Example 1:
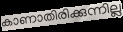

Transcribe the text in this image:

കാണാതിരിക്കുന്നില്ല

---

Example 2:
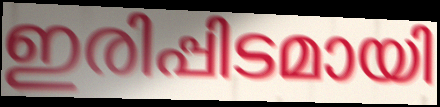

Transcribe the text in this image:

ഇരിപ്പിടമായി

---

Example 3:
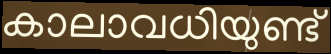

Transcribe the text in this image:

കാലാവധിയുണ്ട്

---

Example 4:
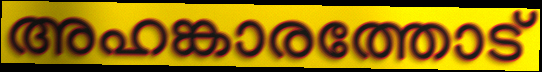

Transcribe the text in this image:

അഹങ്കാരത്തോട്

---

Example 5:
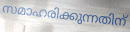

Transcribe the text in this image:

സമാഹരിക്കുന്നതിന്